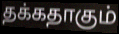
தக்கதாகும்